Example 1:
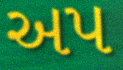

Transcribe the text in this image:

અપ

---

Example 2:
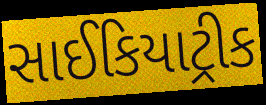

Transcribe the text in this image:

સાઈકિયાટ્રીક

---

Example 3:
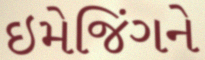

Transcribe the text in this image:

ઇમેજિંગને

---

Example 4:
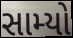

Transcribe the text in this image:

સામ્યો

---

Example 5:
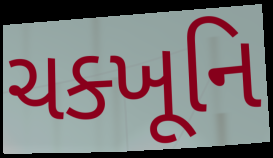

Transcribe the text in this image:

ચક્ખૂનિ